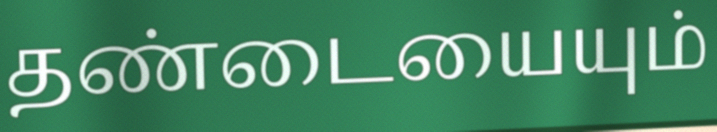
தண்டையையும்